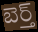
బెర్త్